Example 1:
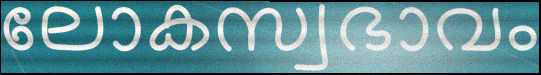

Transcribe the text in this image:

ലോകസ്വഭാവം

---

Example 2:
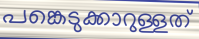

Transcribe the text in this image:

പങ്കെടുക്കാറുള്ളത്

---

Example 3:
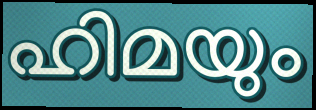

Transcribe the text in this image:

ഹിമയും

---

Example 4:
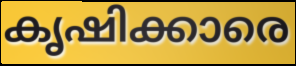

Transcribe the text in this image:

കൃഷിക്കാരെ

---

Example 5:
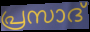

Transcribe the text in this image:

പ്രസാദ്